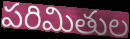
పరిమితుల